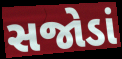
સજોડાં